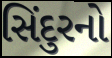
સિંદુરનો